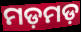
ମଡ଼ମଡ଼